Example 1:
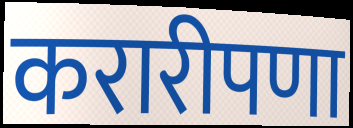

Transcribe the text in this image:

करारीपणा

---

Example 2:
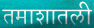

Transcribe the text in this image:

तमाशातली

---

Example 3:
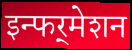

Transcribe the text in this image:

इन्फर्मेशन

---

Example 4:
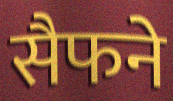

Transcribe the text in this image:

सैफने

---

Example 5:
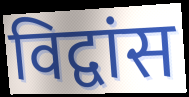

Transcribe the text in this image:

विद्वांस